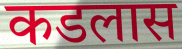
कडलास